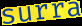
surra